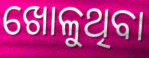
ଖୋଳୁଥିବା